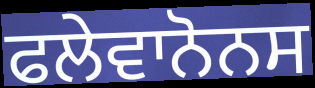
ਫਲੇਵਾਨੋਨਸ